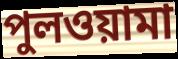
পুলওয়ামা